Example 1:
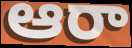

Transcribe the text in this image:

ఆరా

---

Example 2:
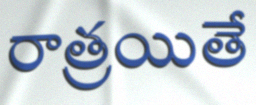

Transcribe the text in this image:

రాత్రయితే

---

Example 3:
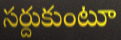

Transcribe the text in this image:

సర్దుకుంటూ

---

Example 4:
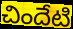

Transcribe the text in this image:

చిందేటి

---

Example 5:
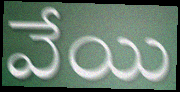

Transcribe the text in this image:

వేయి